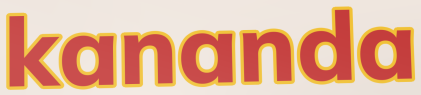
kananda